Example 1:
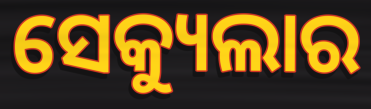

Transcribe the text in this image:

ସେକ୍ୟୁଲାର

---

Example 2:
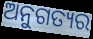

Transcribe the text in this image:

ଅନୁଗତ୍ୟର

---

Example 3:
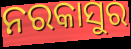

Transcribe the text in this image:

ନରକାସୁର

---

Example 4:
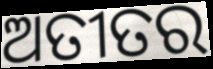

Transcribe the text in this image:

ଅତୀତର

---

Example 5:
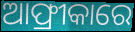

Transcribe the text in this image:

ଆଫ୍ରୀକାରେ